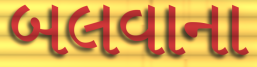
બલવાના